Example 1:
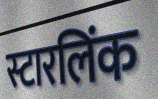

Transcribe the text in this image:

स्‍टारलिंक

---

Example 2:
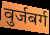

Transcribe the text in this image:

वुर्जबर्ग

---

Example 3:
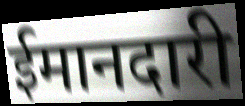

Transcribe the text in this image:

ईमानदारी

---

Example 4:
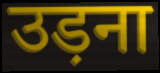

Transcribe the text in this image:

उड़ना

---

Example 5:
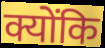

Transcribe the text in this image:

क्योंकि